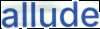
allude